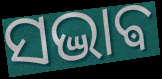
ସଦ୍ଭାଵ